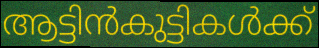
ആട്ടിൻകുട്ടികൾക്ക്